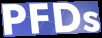
PFDs